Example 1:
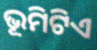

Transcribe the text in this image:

ଭୂମିଟିଏ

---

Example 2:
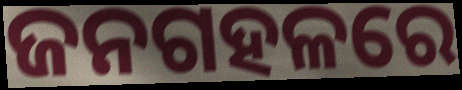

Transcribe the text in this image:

ଜନଗହଳରେ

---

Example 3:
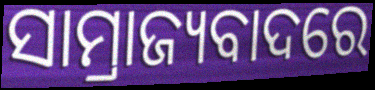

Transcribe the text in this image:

ସାମ୍ରାଜ୍ୟବାଦରେ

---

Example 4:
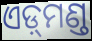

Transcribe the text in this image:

ଏଡ଼୍‌ମଣ୍ଡ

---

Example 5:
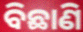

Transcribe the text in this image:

ବିଛାଣି